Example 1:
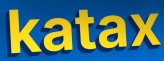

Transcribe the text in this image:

katax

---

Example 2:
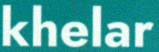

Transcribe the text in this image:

khelar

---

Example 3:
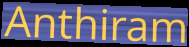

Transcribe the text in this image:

Anthiram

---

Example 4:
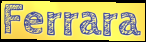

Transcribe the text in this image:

Ferrara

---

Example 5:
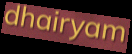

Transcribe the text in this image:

dhairyam